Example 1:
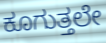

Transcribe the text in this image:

ಕೂಗುತ್ತಲೇ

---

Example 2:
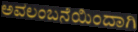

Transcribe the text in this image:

ಅವಲಂಬನೆಯಿಂದಾಗಿ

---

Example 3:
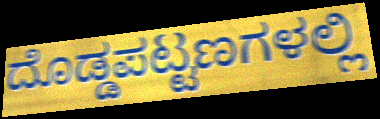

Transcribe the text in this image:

ದೊಡ್ಡಪಟ್ಟಣಗಳಲ್ಲಿ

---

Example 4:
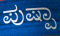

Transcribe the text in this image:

ಪುಷ್ಪಾ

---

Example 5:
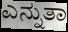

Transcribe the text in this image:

ಎನ್ನುತಾ